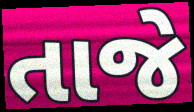
તાજે